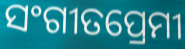
ସଂଗୀତପ୍ରେମୀ